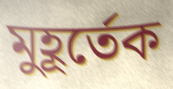
মুহূর্তেক